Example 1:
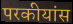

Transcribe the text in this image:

परकीयांस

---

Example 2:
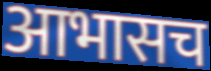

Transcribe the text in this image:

आभासच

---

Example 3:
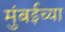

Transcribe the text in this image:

मुंबईच्या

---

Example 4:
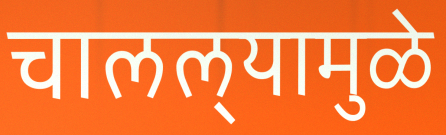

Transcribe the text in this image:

चालल्यामुळे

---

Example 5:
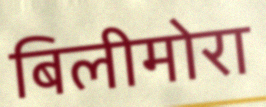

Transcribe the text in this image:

बिलीमोरा